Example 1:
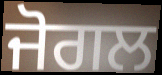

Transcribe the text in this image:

ਜੋਗਲ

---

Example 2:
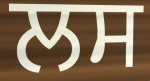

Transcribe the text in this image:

ਲਸ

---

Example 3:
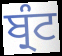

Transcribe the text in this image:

ਬ੍ਰੰਟ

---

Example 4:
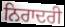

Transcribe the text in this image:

ਨਿਰਾਦਰੀ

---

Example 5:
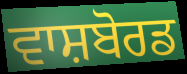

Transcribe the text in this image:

ਵਾਸ਼ਬੋਰਡ